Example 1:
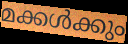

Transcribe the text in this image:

മക്കൾക്കും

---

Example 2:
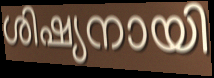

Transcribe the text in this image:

ശിഷ്യനായി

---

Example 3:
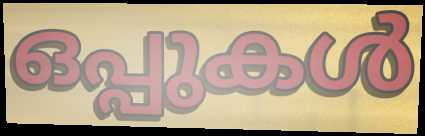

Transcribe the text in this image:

ഒപ്പുകൾ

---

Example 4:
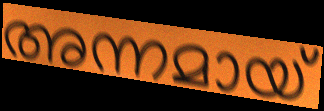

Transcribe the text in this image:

അന്നമായ്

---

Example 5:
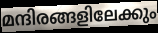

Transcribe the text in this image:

മന്ദിരങ്ങളിലേക്കും